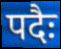
पदैः